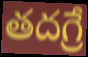
తదగ్రే